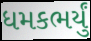
ધમકભર્યું